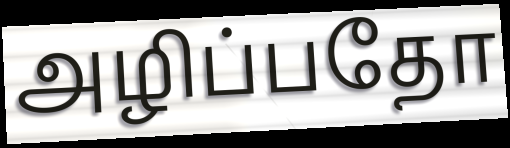
அழிப்பதோ